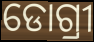
ଡୋଗ୍ରୀ